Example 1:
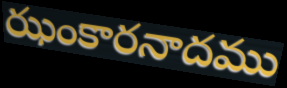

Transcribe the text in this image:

ఝంకారనాదము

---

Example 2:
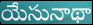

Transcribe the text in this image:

యేసునాథా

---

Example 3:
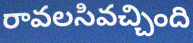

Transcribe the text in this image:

రావలసివచ్చింది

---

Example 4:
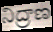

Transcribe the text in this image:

నిద్రాణ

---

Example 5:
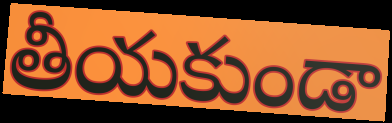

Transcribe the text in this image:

తీయకుండా